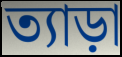
ত্যাড়া